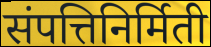
संपत्तिनिर्मिती